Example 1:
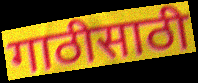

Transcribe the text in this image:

गाठीसाठी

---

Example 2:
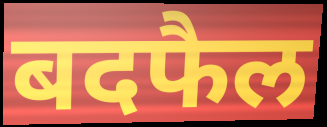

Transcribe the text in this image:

बदफैल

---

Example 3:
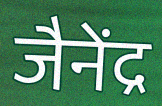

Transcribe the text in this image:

जैनेंद्र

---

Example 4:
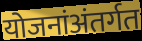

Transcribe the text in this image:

योजनांअंतर्गत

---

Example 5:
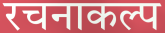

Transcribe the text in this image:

रचनाकल्प